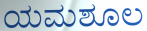
ಯಮಶೂಲ